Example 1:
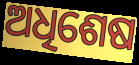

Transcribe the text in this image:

ଅଧିଶେଷ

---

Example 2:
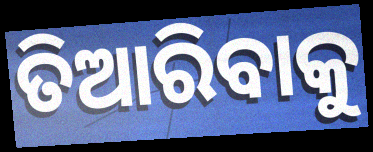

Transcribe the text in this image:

ତିଆରିବାକୁ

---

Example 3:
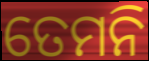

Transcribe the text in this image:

ତେମନି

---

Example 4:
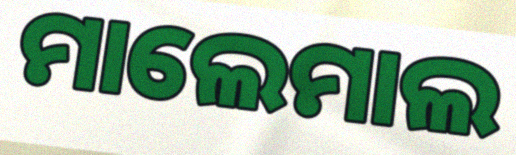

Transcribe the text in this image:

ମାଲେମାଲ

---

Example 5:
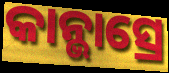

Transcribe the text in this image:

କାନ୍ଭାସ୍ରେ